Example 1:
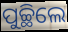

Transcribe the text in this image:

ପୁଚ୍ଛିଲେ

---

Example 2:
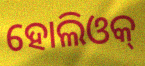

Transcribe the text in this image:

ହୋଲିଓକ୍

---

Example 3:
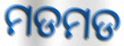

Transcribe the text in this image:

ମଡମଡ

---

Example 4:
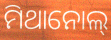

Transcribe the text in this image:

ମିଥାନୋଲ୍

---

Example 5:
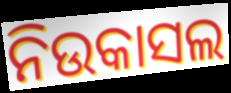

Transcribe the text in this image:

ନିଉକାସଲ